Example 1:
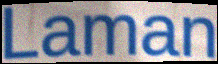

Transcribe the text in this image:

Laman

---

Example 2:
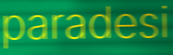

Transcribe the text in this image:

paradesi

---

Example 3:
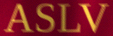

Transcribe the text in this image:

ASLV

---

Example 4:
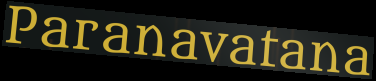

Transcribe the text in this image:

Paranavatana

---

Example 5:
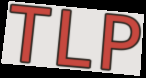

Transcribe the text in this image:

TLP